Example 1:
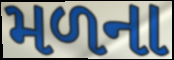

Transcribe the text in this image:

મળના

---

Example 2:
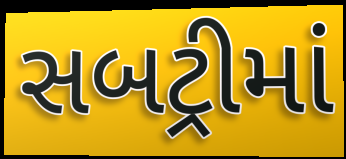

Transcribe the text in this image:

સબટ્રીમાં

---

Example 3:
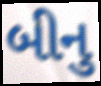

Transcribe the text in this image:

બીનુ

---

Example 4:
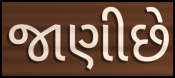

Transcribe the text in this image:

જાણીછે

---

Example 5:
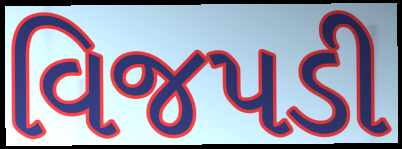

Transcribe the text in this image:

વિજપડી